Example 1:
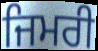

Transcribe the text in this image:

ਜਿਮਰੀ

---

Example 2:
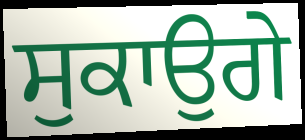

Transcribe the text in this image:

ਸੁਕਾਉਗੇ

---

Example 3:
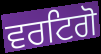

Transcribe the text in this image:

ਵਰਟਿਗੋ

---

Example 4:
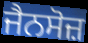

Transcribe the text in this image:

ਜੈਨਸੋਜ਼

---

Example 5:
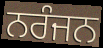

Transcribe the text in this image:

ਨਰੰਜਨ